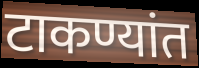
टाकण्यांत